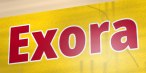
Exora